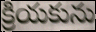
క్రియకును